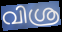
വിശ്ര